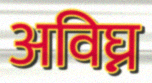
अविघ्न